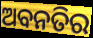
ଅବନତିର